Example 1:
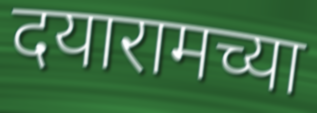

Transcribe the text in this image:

दयारामच्या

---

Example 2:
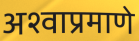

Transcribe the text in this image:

अश्वाप्रमाणे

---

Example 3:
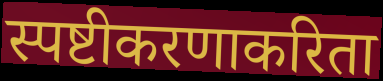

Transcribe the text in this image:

स्पष्टीकरणाकरिता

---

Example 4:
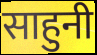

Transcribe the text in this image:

साहुनी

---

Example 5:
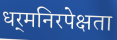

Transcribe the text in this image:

धर्मनिरपेक्षता